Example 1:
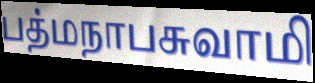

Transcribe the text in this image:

பத்மநாபசுவாமி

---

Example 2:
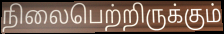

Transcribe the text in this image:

நிலைபெற்றிருக்கும்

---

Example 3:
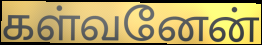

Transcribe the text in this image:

கள்வனேன்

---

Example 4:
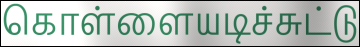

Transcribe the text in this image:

கொள்ளையடிச்சுட்டு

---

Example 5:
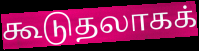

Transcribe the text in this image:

கூடுதலாகக்